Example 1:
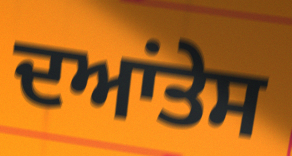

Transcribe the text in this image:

ਦਆਂਤੇਸ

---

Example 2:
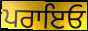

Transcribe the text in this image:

ਪਰਾਇਓ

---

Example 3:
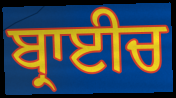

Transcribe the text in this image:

ਬ੍ਰਾਈਚ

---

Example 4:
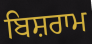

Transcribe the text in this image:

ਬਿਸ਼ਰਾਮ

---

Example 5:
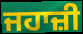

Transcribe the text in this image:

ਜਹਾਜ਼ੀ